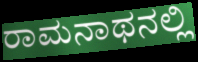
ರಾಮನಾಥನಲ್ಲಿ